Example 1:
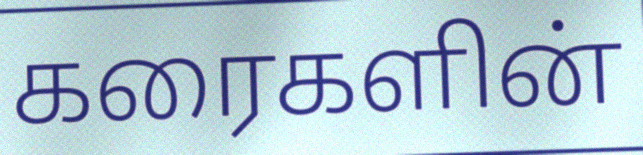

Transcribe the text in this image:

கரைகளின்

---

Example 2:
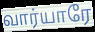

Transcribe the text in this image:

வார்யாரே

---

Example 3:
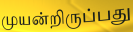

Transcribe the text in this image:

முயன்றிருப்பது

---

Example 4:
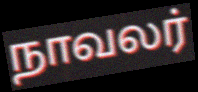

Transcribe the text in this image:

நாவலர்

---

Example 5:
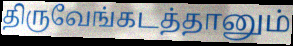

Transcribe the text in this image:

திருவேங்கடத்தானும்